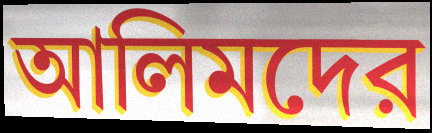
আলিমদের